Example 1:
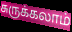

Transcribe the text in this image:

சுருக்கலாம்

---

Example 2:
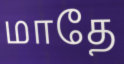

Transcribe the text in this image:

மாதே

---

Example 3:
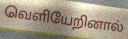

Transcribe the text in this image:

வெளியேறினால்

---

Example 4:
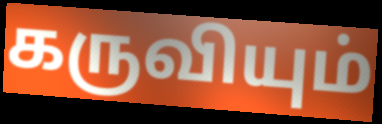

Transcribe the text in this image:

கருவியும்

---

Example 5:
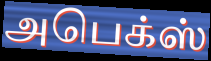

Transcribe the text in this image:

அபெக்ஸ்